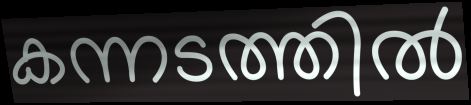
കന്നടത്തിൽ